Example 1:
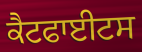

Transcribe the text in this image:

ਕੈਟਫਾਈਟਸ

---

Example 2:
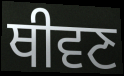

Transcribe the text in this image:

ਥੀਵਣ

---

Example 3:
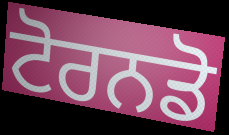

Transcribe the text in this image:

ਟੋਰਨਡੋ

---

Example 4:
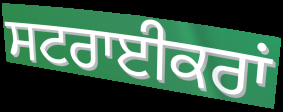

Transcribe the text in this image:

ਸਟਰਾਈਕਰਾਂ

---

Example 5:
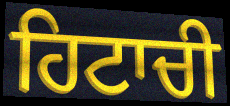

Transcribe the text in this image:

ਹਿਟਾਚੀ